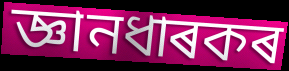
জ্ঞানধাৰকৰ